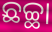
ଛଚ୍ଛା